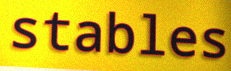
stables